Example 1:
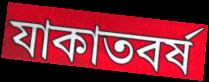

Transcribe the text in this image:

যাকাতবর্ষ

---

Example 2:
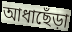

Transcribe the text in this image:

আধাছেঁড়া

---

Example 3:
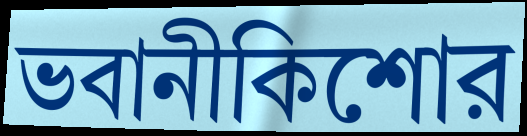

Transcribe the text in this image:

ভবানীকিশোর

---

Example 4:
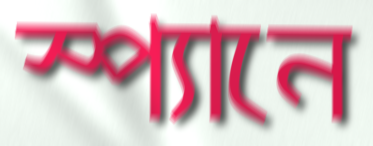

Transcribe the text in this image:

স্প্যানে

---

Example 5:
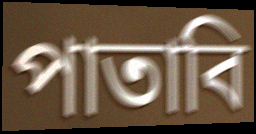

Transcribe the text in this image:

পাতাবি